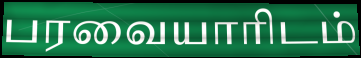
பரவையாரிடம்